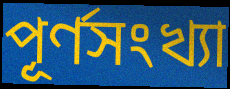
পূর্ণসংখ্যা